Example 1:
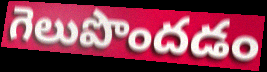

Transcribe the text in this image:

గెలుపొందడం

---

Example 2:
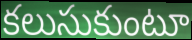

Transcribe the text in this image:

కలుసుకుంటూ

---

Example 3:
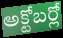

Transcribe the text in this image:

అక్టోబర్లో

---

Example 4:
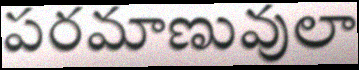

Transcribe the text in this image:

పరమాణువులా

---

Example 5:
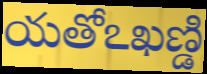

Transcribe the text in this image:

యతోఽఖణ్డి